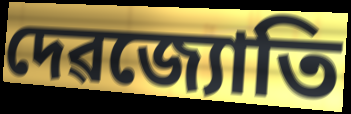
দেৱজ্যোতি